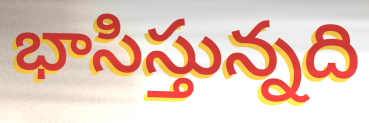
భాసిస్తున్నది